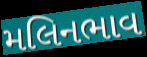
મલિનભાવ